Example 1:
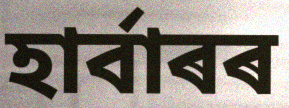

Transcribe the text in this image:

হাৰ্বাৰৰ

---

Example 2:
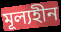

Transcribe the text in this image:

মূল্যহীন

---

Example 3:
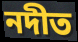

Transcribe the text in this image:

নদীত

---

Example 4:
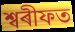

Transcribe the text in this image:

শ্বৰীফত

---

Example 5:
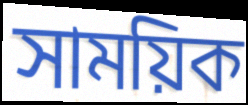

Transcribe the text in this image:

সাময়িক